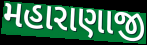
મહારાણાજી